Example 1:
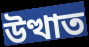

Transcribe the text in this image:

উত্থাত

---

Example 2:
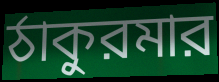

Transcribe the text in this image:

ঠাকুরমার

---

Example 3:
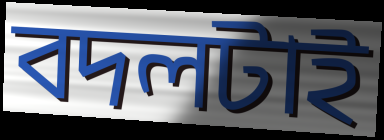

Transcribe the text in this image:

বদলটাই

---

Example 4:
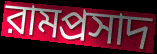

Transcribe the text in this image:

রামপ্রসাদ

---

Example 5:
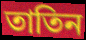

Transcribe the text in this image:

তাতিন